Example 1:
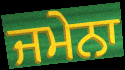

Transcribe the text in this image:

ਜਮੇਨਾ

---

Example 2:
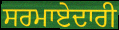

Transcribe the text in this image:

ਸਰਮਾਏਦਾਰੀ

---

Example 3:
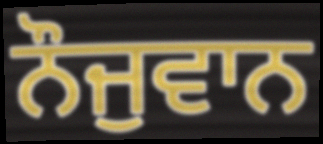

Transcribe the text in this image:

ਨੌਜੁਵਾਨ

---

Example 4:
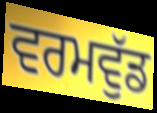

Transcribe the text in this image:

ਵਰਮਵੁੱਡ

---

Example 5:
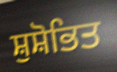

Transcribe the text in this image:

ਸ਼ੁਸ਼ੋਭਿਤ